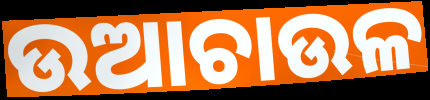
ଉଆଚାଉଳ